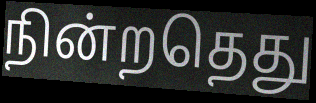
நின்றதெது